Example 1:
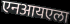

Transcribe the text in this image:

एनआयएला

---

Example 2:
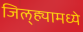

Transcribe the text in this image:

जिल्ह्यामध्ये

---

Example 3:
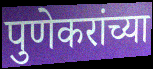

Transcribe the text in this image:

पुणेकरांच्या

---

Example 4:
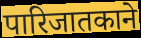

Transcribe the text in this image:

पारिजातकाने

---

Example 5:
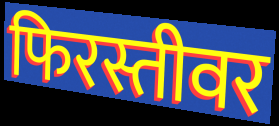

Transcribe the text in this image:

फिरस्तीवर